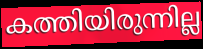
കത്തിയിരുന്നില്ല